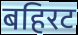
बहिरट